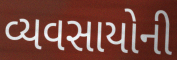
વ્યવસાયોની